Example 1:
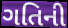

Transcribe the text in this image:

ગતિની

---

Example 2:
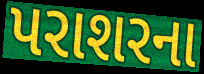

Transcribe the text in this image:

પરાશરના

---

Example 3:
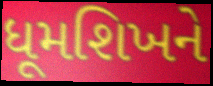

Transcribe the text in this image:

ધૂમશિખને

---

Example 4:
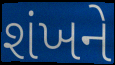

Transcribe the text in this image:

શંખને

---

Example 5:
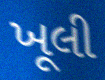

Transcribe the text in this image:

ખૂલી